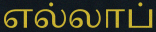
எல்லாப்